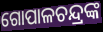
ଗୋପାଳଚନ୍ଦ୍ରଙ୍କ